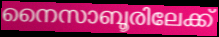
നൈസാബൂരിലേക്ക്